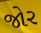
જોર